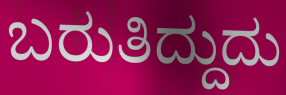
ಬರುತಿದ್ದುದು